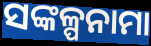
ସଙ୍କଳ୍ପନାମା